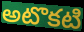
అటొకటి